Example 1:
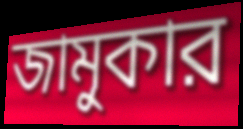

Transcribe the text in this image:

জামুকার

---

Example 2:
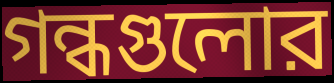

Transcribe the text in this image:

গন্ধগুলোর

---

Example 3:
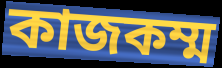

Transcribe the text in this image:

কাজকম্ম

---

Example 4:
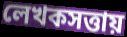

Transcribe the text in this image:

লেখকসত্তায়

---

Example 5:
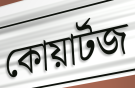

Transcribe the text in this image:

কোয়ার্টজ